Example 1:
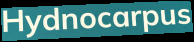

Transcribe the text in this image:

Hydnocarpus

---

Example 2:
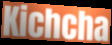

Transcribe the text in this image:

Kichcha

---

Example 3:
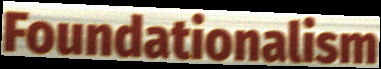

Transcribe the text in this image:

Foundationalism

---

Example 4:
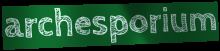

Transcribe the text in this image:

archesporium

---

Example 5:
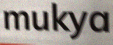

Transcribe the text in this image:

mukya